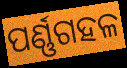
ପର୍ଣ୍ଣଗହଳ